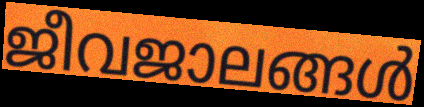
ജീവജാലങ്ങൾ